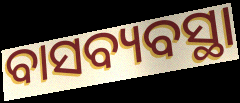
ବାସବ୍ୟବସ୍ଥା